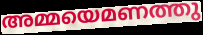
അമ്മയെമണത്തു